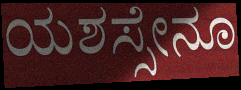
ಯಶಸ್ಸೇನೂ